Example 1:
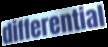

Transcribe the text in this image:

differential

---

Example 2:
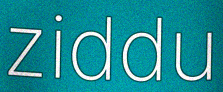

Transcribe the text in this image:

ziddu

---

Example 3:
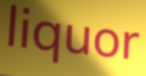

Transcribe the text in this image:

liquor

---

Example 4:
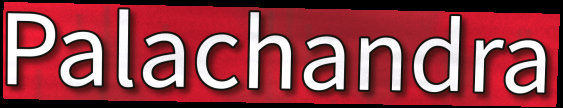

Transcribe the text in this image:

Palachandra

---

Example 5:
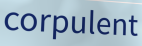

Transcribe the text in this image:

corpulent